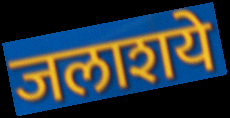
जलाशये